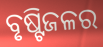
ବୃଷ୍ଟିଜଳର